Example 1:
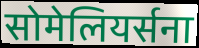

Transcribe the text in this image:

सोमेलियर्सना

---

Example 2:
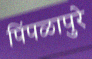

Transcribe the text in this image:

पिंपळापुरे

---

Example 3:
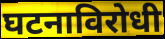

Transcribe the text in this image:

घटनाविरोधी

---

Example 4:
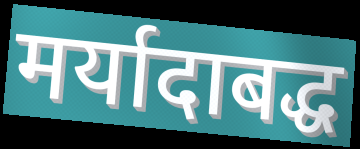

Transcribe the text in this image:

मर्यादाबद्ध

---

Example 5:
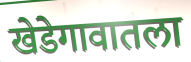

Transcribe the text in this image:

खेडेगावातला